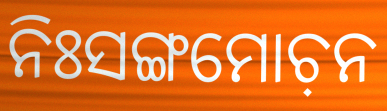
ନିଃସଙ୍ଗମୋଚ଼ନ